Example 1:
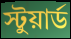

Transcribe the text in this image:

স্টুয়ার্ড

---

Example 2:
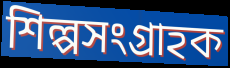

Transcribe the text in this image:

শিল্পসংগ্রাহক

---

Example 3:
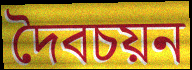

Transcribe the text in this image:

দৈবচয়ন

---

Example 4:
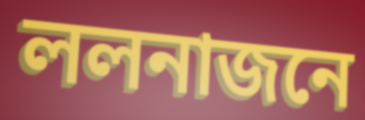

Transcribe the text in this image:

ললনাজনে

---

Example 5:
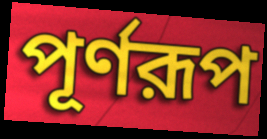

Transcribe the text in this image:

পূর্ণরূপ